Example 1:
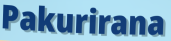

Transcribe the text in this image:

Pakurirana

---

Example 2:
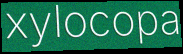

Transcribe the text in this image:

xylocopa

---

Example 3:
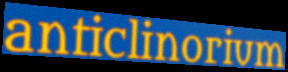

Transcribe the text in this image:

anticlinorium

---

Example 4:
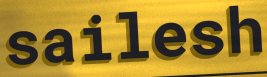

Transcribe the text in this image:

sailesh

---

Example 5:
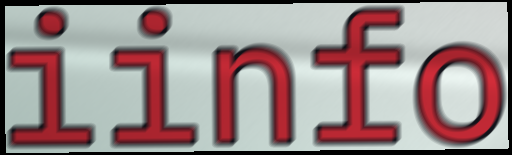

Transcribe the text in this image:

iinfo